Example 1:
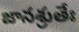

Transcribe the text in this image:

జానశ్రుతేః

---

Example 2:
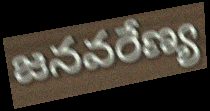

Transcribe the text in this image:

జనవరేణ్య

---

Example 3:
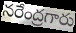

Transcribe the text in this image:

నరేంద్రగారు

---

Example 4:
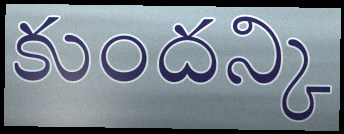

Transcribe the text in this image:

కుందన్కి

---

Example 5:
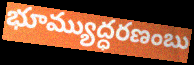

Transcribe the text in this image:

భూమ్యుద్ధరణంబు